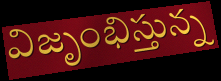
విజృంభిస్తున్న